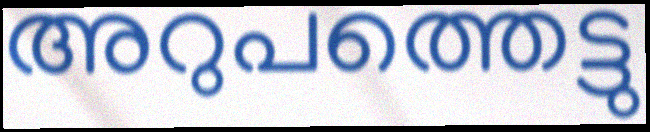
അറുപത്തെട്ടു